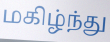
மகிழ்ந்து